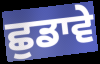
ਛੁਡਾਵੇ